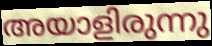
അയാളിരുന്നു